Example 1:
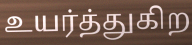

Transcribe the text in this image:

உயர்த்துகிற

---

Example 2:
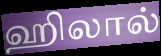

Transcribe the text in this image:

ஹிலால்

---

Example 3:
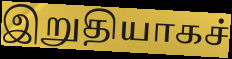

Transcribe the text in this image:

இறுதியாகச்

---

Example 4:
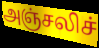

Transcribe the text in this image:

அஞ்சலிச்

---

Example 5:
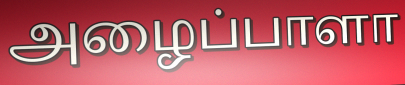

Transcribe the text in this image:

அழைப்பாளா